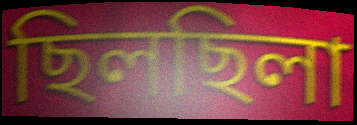
ছিলছিলা